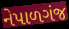
નેપાળગંજ